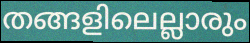
തങ്ങളിലെല്ലാരും